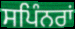
ਸਪਿੰਨਰਾਂ